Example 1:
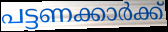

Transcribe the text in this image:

പട്ടണക്കാർക്ക്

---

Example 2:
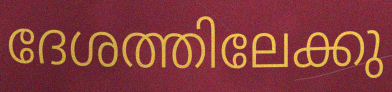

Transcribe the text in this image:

ദേശത്തിലേക്കു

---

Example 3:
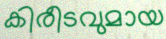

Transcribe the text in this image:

കിരീടവുമായ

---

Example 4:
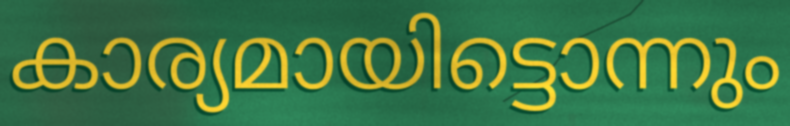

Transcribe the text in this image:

കാര്യമായിട്ടൊന്നും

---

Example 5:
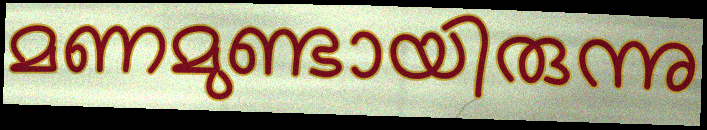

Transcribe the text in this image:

മണമുണ്ടായിരുന്നു